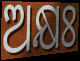
ଅକ୍ଷଃ